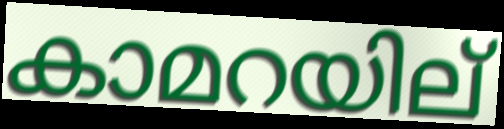
കാമറയില്